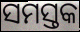
ସମସ୍ତକ